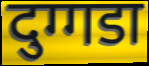
दुग्गडा